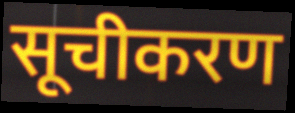
सूचीकरण